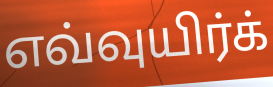
எவ்வுயிர்க்